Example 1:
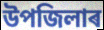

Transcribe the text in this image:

উপজিলাৰ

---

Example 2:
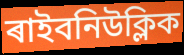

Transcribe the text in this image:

ৰাইবনিউক্লিক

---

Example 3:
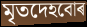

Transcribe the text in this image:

মৃতদেহবোৰ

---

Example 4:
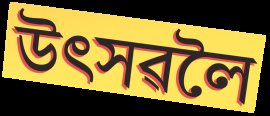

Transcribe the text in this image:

উৎসৱলৈ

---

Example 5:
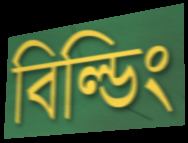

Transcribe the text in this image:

বিল্ডিং